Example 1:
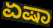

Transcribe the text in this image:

ಏಷಾ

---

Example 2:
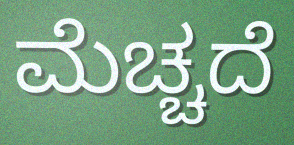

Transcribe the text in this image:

ಮೆಚ್ಚದೆ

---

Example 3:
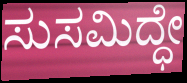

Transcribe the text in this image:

ಸುಸಮಿದ್ಧೇ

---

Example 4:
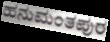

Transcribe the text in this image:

ಹನುಮಂತಪುರ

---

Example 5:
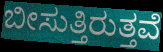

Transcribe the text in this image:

ಬೀಸುತ್ತಿರುತ್ತವೆ